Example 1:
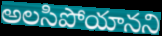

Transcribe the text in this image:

అలసిపోయానని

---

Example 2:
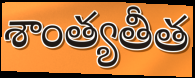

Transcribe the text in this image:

శాంత్యతీత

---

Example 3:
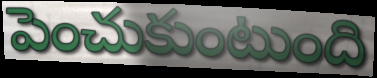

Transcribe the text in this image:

పెంచుకుంటుంది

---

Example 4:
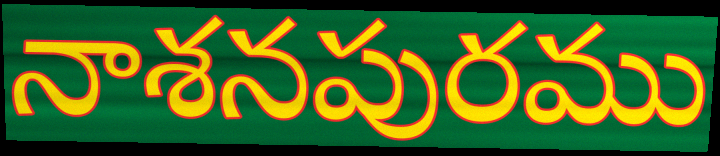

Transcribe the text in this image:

నాశనపురము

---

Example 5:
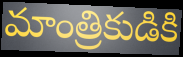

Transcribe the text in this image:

మాంత్రికుడికి